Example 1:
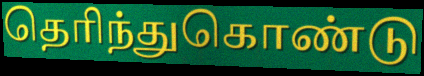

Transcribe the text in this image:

தெரிந்துகொண்டு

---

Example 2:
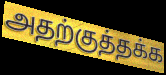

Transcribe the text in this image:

அதற்குத்தக்க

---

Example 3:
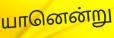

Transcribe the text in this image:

யானென்று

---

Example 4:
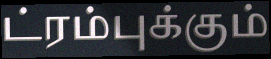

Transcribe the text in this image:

ட்ரம்புக்கும்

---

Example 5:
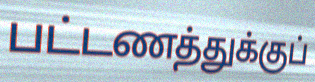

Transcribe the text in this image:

பட்டணத்துக்குப்